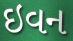
ઇવન